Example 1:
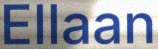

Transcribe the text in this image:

Ellaan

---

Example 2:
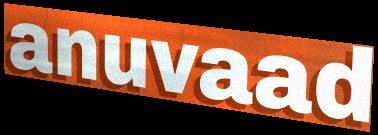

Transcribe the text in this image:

anuvaad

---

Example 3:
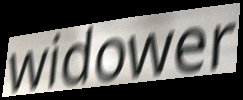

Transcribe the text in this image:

widower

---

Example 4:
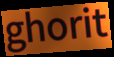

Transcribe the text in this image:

ghorit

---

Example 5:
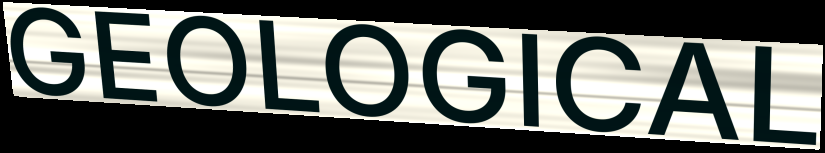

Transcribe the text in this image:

GEOLOGICAL